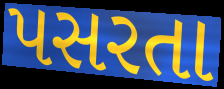
પસરતા